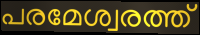
പരമേശ്വരത്ത്